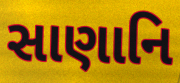
સાણાનિ